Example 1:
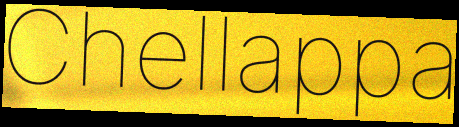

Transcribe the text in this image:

Chellappa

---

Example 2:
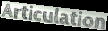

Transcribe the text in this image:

Articulation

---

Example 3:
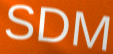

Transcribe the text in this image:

SDM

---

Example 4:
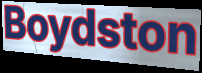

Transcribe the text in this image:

Boydston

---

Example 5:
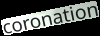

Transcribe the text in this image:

coronation